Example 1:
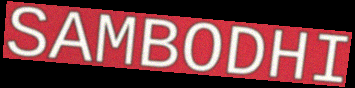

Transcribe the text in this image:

SAMBODHI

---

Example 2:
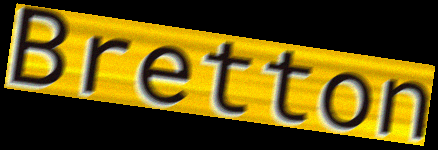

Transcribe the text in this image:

Bretton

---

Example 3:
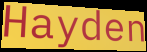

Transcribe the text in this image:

Hayden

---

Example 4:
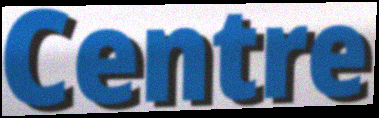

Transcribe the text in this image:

Centre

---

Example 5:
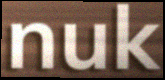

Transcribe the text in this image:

nuk